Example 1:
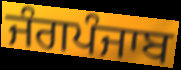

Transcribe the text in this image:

ਜੰਗਪੰਜਾਬ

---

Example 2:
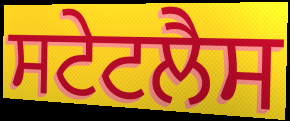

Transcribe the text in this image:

ਸਟੇਟਲੈਸ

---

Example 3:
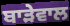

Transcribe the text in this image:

ਬਾੜੇਵਾਲ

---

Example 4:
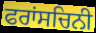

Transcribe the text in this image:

ਫਰਾਂਸਚਿਨੀ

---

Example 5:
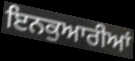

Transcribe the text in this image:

ਇਨਕੁਆਰੀਆਂ